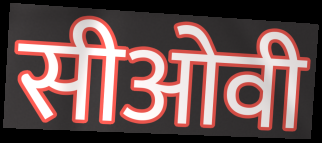
सीओवी